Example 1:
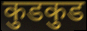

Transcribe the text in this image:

कुडकुड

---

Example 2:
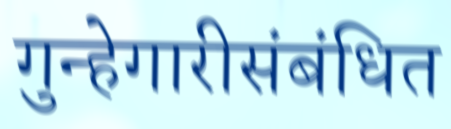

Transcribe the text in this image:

गुन्हेगारीसंबंधित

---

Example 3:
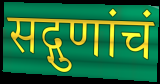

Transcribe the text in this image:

सद्गुणांचं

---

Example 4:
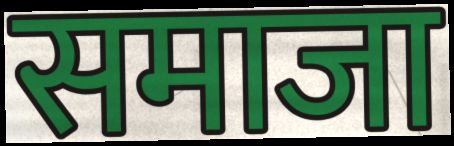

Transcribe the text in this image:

समाजा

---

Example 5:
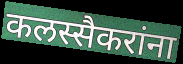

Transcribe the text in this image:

कलस्सैकरांना